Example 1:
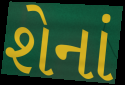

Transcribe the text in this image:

શેનાં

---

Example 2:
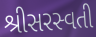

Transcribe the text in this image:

શ્રીસરસ્વતી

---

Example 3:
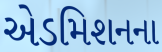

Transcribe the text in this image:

એડમિશનના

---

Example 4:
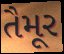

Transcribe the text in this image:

તૈમૂર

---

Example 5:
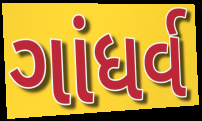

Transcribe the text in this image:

ગાંધર્વ